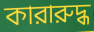
কারারুদ্ধ